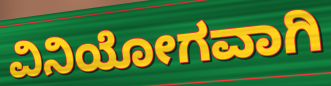
ವಿನಿಯೋಗವಾಗಿ